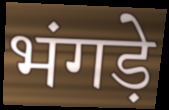
भंगड़े